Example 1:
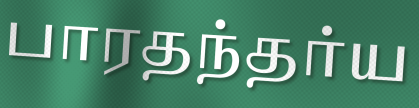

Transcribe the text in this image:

பாரதந்தர்ய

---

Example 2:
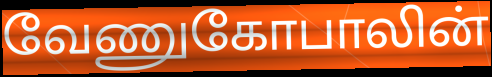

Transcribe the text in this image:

வேணுகோபாலின்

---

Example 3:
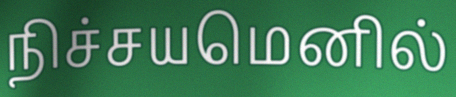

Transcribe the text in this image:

நிச்சயமெனில்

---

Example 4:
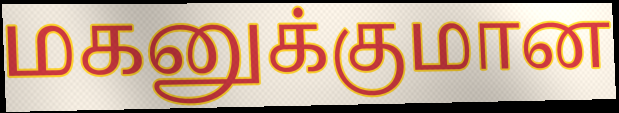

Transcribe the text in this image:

மகனுக்குமான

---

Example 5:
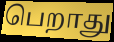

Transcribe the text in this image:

பெறாது